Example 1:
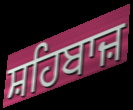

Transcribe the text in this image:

ਸ਼ਹਿਬਾਜ਼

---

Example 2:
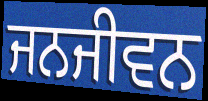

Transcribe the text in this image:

ਜਨਜੀਵਨ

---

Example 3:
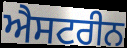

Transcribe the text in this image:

ਐਸਟਰੀਨ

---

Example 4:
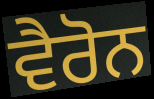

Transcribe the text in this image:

ਵੈਰੋਨ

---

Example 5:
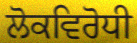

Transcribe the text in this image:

ਲੋਕਵਿਰੋਧੀ